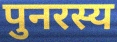
पुनरस्य